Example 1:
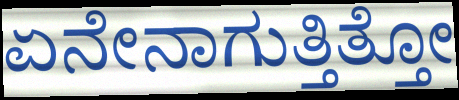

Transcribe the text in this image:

ಏನೇನಾಗುತ್ತಿತ್ತೋ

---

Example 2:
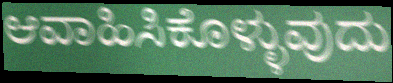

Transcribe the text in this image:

ಆವಾಹಿಸಿಕೊಳ್ಳುವುದು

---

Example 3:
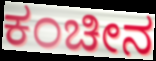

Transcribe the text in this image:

ಕಂಚೀನ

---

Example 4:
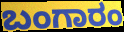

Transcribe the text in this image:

ಬಂಗಾರಂ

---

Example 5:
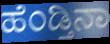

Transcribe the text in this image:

ಹೆಂಡ್ತಿನಾ